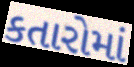
કતારોમાં